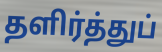
தளிர்த்துப்